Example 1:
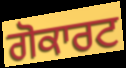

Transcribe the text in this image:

ਗੋਕਾਰਟ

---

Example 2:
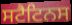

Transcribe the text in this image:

ਸਟੈਟਿਨਸ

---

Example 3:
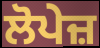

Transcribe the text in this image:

ਲੋਪੇਜ਼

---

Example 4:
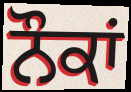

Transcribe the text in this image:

ਨੌਕਾਂ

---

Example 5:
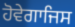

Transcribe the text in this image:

ਹੋਵੇਗਾਜਿਸ